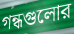
গন্ধগুলোর